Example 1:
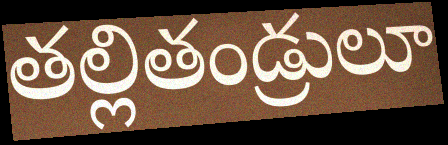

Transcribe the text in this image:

తల్లితండ్రులూ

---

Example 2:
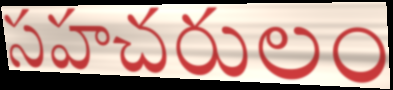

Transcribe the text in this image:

సహచరులం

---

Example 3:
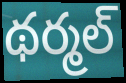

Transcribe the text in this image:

థర్మల్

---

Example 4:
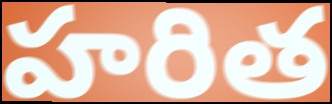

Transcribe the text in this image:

హరిత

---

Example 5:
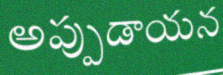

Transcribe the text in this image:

అప్పుడాయన